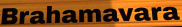
Brahamavara